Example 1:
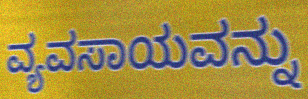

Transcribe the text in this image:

ವ್ಯವಸಾಯವನ್ನು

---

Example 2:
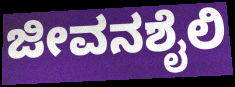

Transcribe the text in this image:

ಜೀವನಶೈಲಿ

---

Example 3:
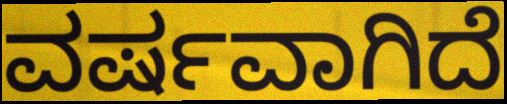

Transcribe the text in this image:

ವರ್ಷವಾಗಿದೆ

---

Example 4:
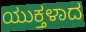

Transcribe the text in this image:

ಯುಕ್ತಳಾದ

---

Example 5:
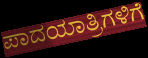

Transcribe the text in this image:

ಪಾದಯಾತ್ರಿಗಳಿಗೆ